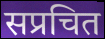
सप्रचित